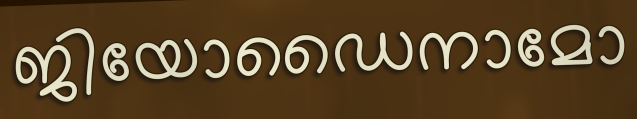
ജിയോഡൈനാമോ